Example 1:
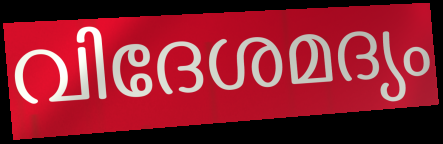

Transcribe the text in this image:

വിദേശമദ്യം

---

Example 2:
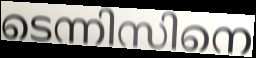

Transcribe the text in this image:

ടെന്നിസിനെ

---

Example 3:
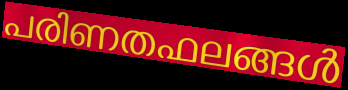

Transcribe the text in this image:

പരിണതഫലങ്ങൾ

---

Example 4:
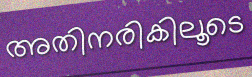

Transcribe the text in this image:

അതിനരികിലൂടെ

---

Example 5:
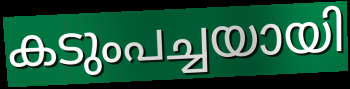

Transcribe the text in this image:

കടുംപച്ചയായി